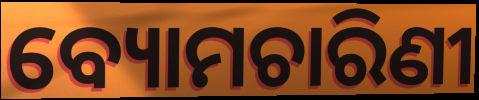
ବ୍ୟୋମଚାରିଣୀ